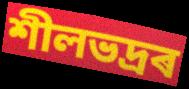
শীলভদ্ৰৰ